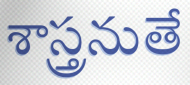
శాస్త్రనుతే